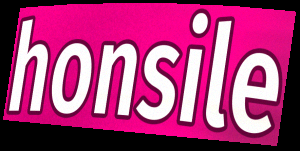
honsile